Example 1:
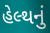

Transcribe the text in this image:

હેલ્થનું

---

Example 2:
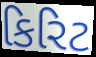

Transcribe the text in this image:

કિરિટ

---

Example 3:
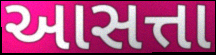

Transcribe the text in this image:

આસત્તા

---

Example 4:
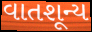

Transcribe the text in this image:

વાતશૂન્ય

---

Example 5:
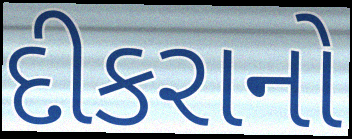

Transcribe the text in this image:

દીકરાનો